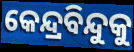
କେନ୍ଦ୍ରବିନ୍ଦୁକୁ